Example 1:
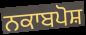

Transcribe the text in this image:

ਨਕਾਬਪੋਸ਼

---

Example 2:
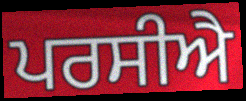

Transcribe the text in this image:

ਪਰਸੀਐ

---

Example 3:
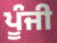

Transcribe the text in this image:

ਪੂੰਜੀ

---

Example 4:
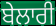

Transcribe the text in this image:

ਬੇਲਾਰੀ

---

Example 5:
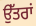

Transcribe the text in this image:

ਉੱਤਰਾਂ